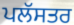
ਪਲੱਸਤਰ